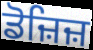
ਡੋਜ਼ਿਜ਼